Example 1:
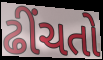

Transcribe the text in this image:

ઢીંચતો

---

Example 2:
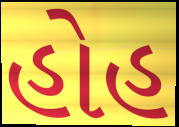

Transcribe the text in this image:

હોહ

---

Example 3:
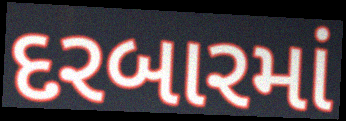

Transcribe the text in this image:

દરબારમાં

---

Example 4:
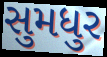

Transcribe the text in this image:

સુમધુર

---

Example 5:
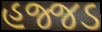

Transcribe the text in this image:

હજ્જડ